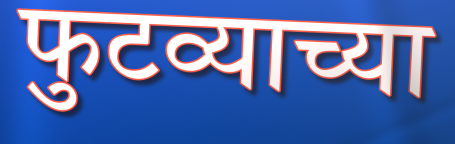
फुटव्याच्या